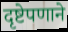
दृष्टेपणाने